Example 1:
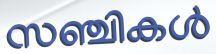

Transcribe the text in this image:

സഞ്ചികൾ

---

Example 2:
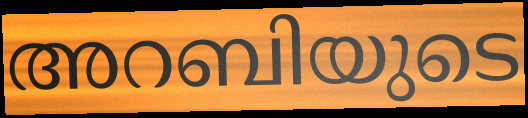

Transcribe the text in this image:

അറബിയുടെ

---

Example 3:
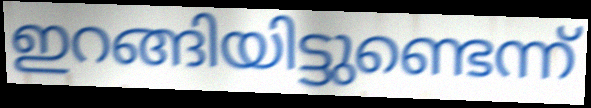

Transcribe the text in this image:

ഇറങ്ങിയിട്ടുണ്ടെന്ന്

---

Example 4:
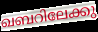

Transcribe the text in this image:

ഖബറിലേക്കു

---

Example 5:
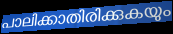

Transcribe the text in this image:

പാലിക്കാതിരിക്കുകയും